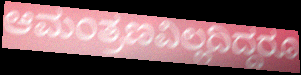
ಆಮಂತ್ರಣವಿಲ್ಲದಿದ್ದರೂ